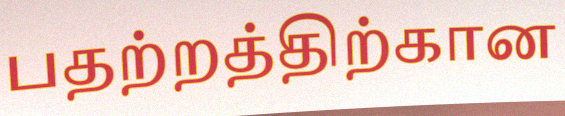
பதற்றத்திற்கான